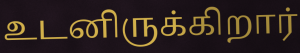
உடனிருக்கிறார்